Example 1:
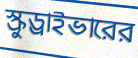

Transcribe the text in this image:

স্ক্রুড্রাইভারের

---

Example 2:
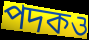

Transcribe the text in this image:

পদকও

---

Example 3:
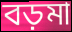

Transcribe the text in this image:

বড়মা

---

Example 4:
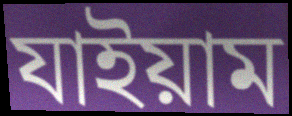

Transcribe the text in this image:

যাইয়াম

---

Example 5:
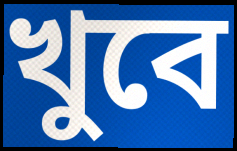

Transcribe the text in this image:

খুবে